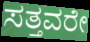
ಸತ್ತವರೇ